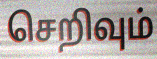
செறிவும்